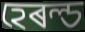
হেৰল্ড